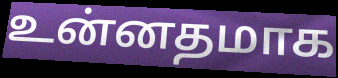
உன்னதமாக